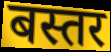
बस्तर